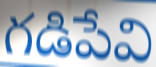
గడిపేవి